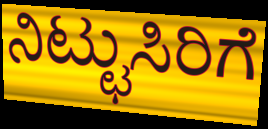
ನಿಟ್ಟುಸಿರಿಗೆ